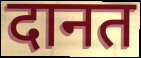
दानत